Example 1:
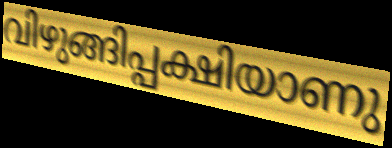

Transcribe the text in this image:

വിഴുങ്ങിപ്പക്ഷിയാണു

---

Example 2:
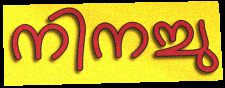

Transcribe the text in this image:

നിനച്ചു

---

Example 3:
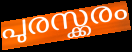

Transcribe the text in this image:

പുരസ്ക്കരം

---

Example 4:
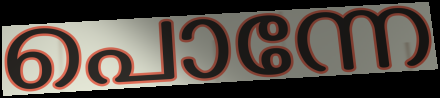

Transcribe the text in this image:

പൊന്നേ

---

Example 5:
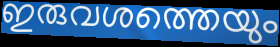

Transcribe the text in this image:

ഇരുവശത്തെയും